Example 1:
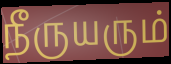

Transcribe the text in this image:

நீருயரும்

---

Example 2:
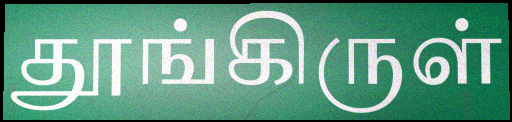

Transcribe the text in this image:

தூங்கிருள்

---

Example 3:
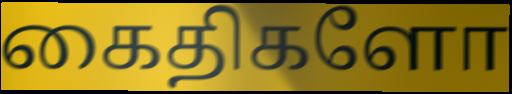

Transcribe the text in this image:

கைதிகளோ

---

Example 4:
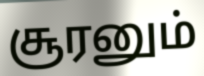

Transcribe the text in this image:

சூரனும்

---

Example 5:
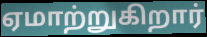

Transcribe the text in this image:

ஏமாற்றுகிறார்